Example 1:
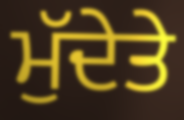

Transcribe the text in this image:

ਮੁੱਦੇਤੇ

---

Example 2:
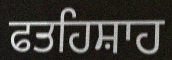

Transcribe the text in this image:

ਫਤਹਿਸ਼ਾਹ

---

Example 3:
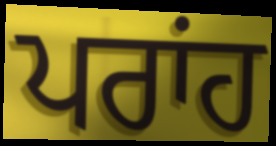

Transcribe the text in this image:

ਪਰਾਂਹ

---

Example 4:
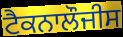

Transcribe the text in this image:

ਟੈਕਨਾਲੌਜੀਸ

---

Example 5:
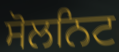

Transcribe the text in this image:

ਸੋਲਨਿਟ